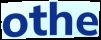
othe